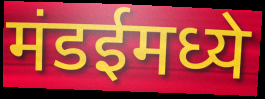
मंडईमध्ये